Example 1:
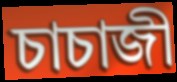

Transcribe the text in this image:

চাচাজী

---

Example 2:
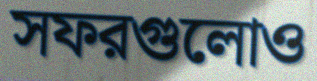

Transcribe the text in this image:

সফরগুলোও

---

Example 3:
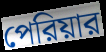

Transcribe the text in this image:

পেরিয়ার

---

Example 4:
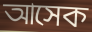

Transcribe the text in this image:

আসেক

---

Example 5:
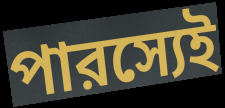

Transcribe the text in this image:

পারস্যেই